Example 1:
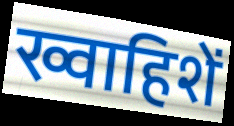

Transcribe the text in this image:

ख्वाहिशें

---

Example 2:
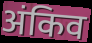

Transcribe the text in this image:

अंकिव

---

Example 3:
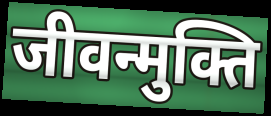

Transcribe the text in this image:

जीवन्मुक्ति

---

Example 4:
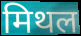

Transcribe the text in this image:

मिथल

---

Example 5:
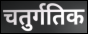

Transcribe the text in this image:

चतुर्गतिक